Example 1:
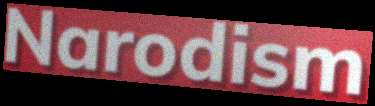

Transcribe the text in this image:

Narodism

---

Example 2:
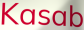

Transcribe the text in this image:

Kasab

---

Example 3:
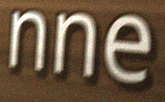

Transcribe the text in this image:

nne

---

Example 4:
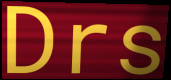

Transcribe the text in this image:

Drs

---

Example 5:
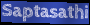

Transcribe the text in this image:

Saptasathi